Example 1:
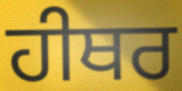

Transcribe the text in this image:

ਹੀਥਰ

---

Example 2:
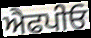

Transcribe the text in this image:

ਐਫਪੀਓ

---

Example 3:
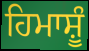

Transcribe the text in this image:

ਹਿਮਾਸ਼ੂੰ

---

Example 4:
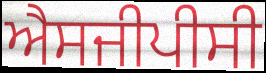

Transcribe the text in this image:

ਐਸਜੀਪੀਸੀ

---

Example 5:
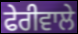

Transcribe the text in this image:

ਫੇਰੀਵਾਲੇ